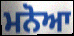
ਮਨੋਆ